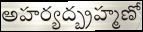
అహర్యద్బ్రహ్మణో